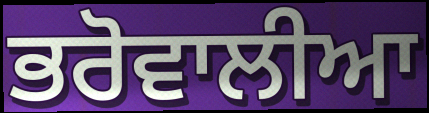
ਭਰੋਵਾਲੀਆ